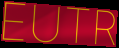
EUTR